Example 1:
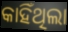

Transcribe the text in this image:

କାହିଁଥିଲା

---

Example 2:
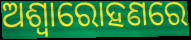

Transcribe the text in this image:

ଅଶ୍ୱାରୋହଣରେ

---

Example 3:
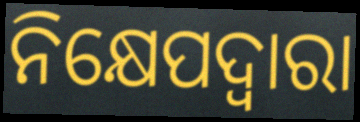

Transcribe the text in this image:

ନିକ୍ଷେପଦ୍ୱାରା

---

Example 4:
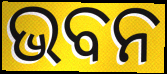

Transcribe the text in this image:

ଭବନ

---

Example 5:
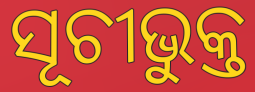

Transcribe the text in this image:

ସୂଚୀଭୁକ୍ତ